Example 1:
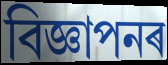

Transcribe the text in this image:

বিজ্ঞাপনৰ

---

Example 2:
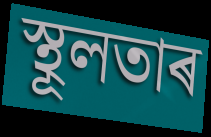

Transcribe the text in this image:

স্থূলতাৰ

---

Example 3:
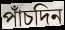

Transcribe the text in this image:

পাঁচদিন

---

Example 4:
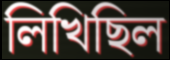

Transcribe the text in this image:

লিখিছিল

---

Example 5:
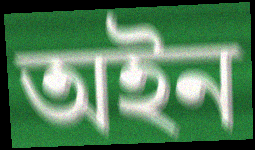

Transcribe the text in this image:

অইন